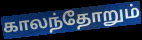
காலந்தோறும்